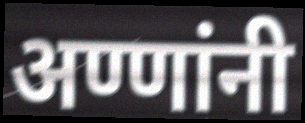
अण्णांनी